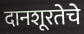
दानशूरतेचे